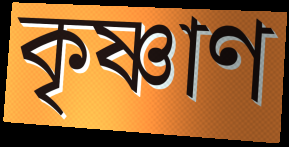
কৃষ্ণাণ